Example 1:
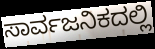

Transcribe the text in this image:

ಸಾರ್ವಜನಿಕದಲ್ಲಿ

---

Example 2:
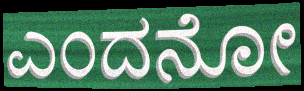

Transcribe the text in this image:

ಎಂದನೋ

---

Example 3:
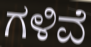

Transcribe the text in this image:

ಗಳಿವೆ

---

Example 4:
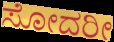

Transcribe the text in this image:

ಸೋದರೀ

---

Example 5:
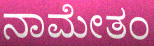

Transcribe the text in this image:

ನಾಮೇತಂ